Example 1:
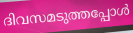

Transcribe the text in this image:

ദിവസമടുത്തപ്പോൾ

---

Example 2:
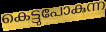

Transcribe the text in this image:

കെട്ടുപോകുന്ന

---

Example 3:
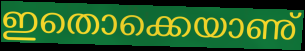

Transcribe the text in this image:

ഇതൊക്കെയാണു്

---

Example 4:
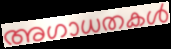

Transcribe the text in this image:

അഗാധതകൾ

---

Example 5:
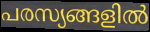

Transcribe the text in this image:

പരസ്യങ്ങളിൽ